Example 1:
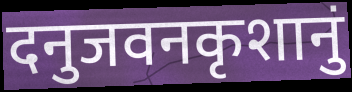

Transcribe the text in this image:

दनुजवनकृशानुं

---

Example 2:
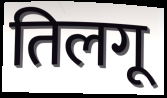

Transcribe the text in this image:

तिलगू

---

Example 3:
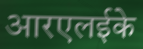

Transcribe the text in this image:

आरएलईके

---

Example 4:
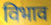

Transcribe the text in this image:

विभाव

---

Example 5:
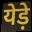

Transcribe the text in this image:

येड़े